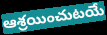
ఆశ్రయించుటయే